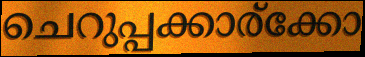
ചെറുപ്പക്കാര്ക്കോ